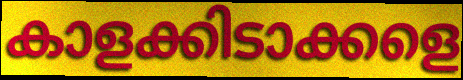
കാളക്കിടാക്കളെ